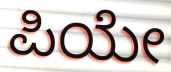
ಪಿಯೇ